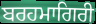
ਬਰਹਮਾਗਿਰੀ